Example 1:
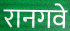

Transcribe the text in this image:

रानगवे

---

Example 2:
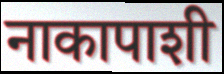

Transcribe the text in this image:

नाकापाशी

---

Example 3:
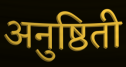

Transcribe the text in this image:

अनुष्ठिती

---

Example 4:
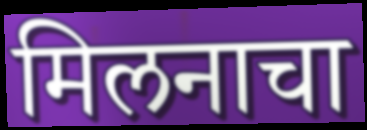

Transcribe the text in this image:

मिलनाचा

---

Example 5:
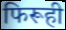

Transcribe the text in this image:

फिरूही